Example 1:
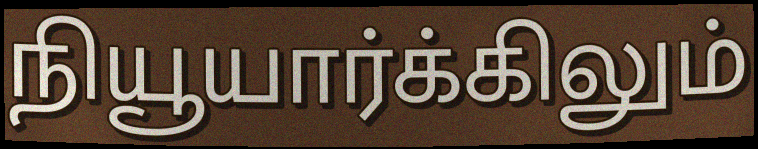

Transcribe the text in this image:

நியூயார்க்கிலும்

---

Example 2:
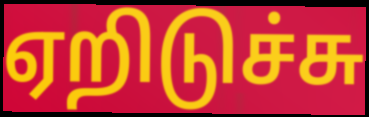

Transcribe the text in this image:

ஏறிடுச்சு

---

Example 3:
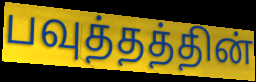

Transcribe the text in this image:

பவுத்தத்தின்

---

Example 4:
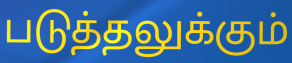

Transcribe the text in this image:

படுத்தலுக்கும்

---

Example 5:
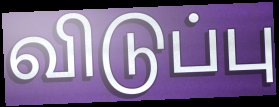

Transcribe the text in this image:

விடுப்பு